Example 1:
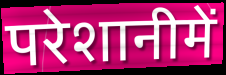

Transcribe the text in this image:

परेशानीमें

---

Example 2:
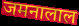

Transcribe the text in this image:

जमनालाल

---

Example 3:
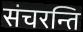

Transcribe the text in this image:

संचरन्ति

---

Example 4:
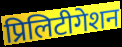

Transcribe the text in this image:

प्रिलिटीगेशन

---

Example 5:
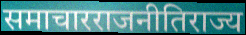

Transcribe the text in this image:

समाचारराजनीतिराज्य